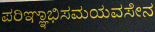
ಪರಿಞ್ಞಾಭಿಸಮಯವಸೇನ